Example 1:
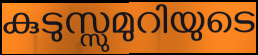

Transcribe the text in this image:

കുടുസ്സുമുറിയുടെ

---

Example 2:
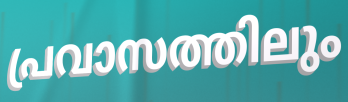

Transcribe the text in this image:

പ്രവാസത്തിലും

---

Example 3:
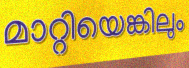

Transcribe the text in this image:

മാറ്റിയെങ്കിലും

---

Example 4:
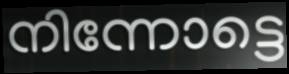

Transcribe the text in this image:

നിന്നോട്ടെ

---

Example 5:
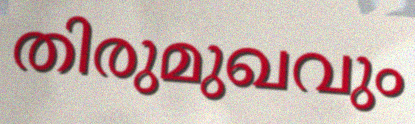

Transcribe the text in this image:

തിരുമുഖവും